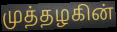
முத்தழகின்